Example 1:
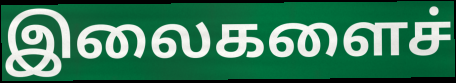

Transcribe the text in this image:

இலைகளைச்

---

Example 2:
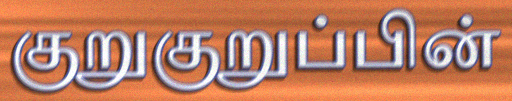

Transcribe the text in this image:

குறுகுறுப்பின்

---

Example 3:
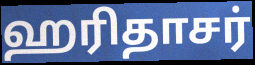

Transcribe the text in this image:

ஹரிதாசர்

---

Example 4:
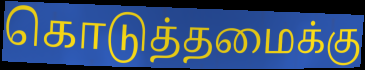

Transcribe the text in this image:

கொடுத்தமைக்கு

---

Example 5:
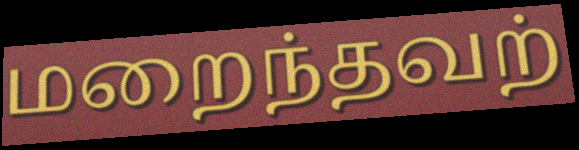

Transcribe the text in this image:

மறைந்தவற்